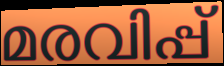
മരവിപ്പ്